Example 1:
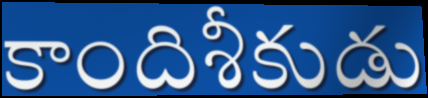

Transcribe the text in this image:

కాందిశీకుడు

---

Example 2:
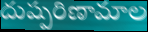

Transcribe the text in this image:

దుష్పరిణామాల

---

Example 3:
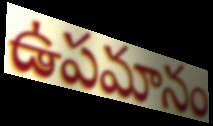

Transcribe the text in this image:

ఉపమానం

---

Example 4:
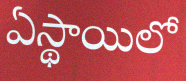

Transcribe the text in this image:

ఏస్థాయిలో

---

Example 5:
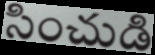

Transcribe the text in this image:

సించుడి